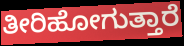
ತೀರಿಹೋಗುತ್ತಾರೆ